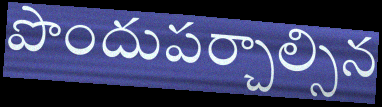
పొందుపర్చాల్సిన